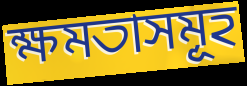
ক্ষমতাসমূহ